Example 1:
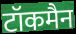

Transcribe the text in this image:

टॉकमैन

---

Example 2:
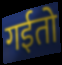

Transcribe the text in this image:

गईतो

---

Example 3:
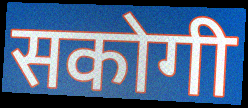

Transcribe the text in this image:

सकोगी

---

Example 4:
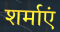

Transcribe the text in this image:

शर्माएं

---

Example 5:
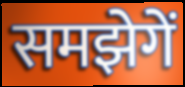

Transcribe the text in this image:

समझेगें